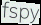
fspy